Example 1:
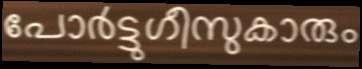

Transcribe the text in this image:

പോർട്ടുഗീസുകാരും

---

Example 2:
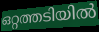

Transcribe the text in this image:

ഒറ്റത്തടിയിൽ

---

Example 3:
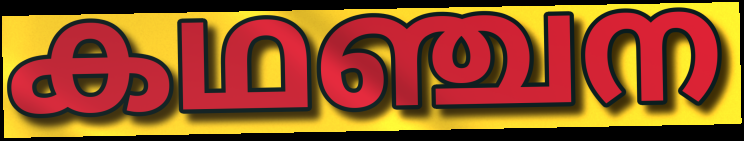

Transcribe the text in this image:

കഥഞ്ചന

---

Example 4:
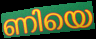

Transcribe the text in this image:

ണിയെ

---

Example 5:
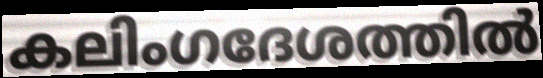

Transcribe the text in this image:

കലിംഗദേശത്തിൽ